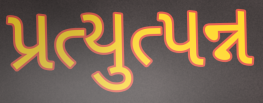
પ્રત્યુત્પન્ન